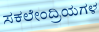
ಸಕಲೇಂದ್ರಿಯಗಳ